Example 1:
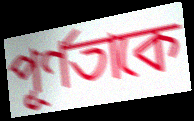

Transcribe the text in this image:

পূর্ণতাকে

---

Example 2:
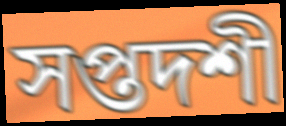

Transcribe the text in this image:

সপ্তদশী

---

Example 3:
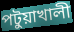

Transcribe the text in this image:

পটুয়াখালী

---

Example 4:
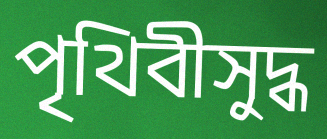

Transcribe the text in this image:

পৃথিবীসুদ্ধ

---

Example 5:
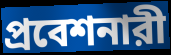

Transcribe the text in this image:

প্রবেশনারী